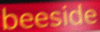
beeside